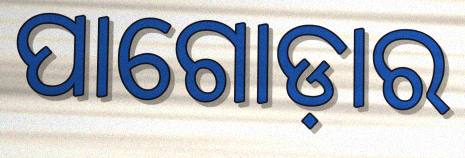
ପାଗୋଡ଼ାର